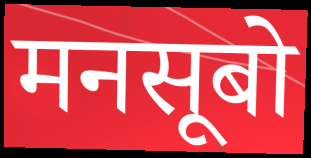
मनसूबो